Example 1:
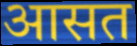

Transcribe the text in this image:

आसत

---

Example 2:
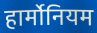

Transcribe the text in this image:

हार्मोनियम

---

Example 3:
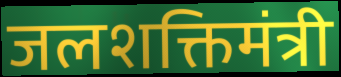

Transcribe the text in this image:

जलशक्तिमंत्री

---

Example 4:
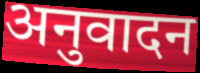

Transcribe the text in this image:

अनुवादन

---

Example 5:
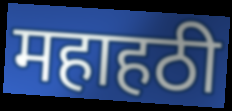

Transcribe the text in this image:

महाहठी